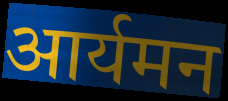
आर्यमन